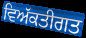
ਵਿਅੱਕਤੀਗਤ